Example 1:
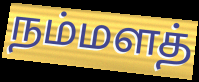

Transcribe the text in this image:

நம்மளத்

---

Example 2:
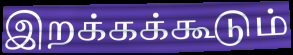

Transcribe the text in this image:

இறக்கக்கூடும்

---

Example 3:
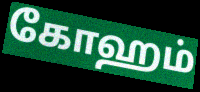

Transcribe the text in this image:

கோஹம்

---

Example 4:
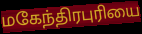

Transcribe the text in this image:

மகேந்திரபுரியை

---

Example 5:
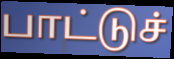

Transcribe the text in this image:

பாட்டுச்